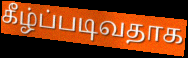
கீழ்ப்படிவதாக